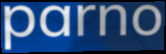
parno